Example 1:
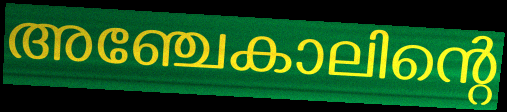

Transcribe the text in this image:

അഞ്ചേകാലിന്റെ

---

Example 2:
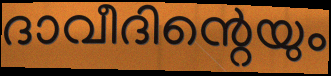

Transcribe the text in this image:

ദാവീദിന്റെയും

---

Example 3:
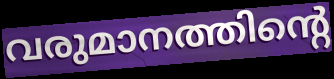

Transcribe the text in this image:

വരുമാനത്തിന്റെ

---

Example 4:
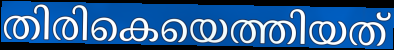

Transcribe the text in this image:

തിരികെയെത്തിയത്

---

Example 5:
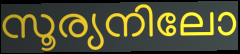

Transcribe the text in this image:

സൂര്യനിലോ